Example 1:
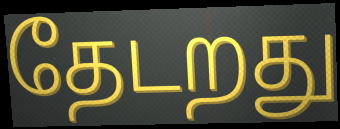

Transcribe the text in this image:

தேடறது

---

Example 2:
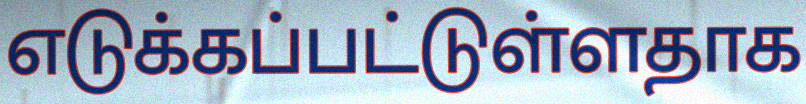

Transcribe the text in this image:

எடுக்கப்பட்டுள்ளதாக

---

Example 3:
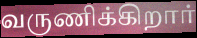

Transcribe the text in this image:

வருணிக்கிறார்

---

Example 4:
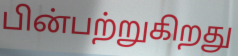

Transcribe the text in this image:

பின்பற்றுகிறது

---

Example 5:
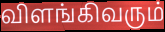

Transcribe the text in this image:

விளங்கிவரும்